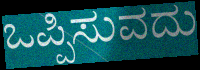
ಒಪ್ಪಿಸುವದು